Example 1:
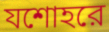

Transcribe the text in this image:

যশোহরে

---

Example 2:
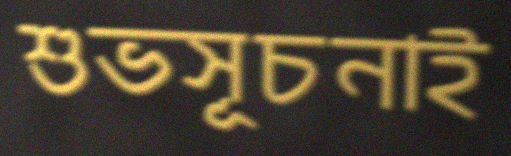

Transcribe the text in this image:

শুভসূচনাই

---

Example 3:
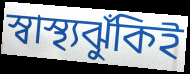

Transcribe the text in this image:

স্বাস্থ্যঝুঁকিই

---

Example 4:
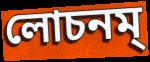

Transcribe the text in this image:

লোচনম্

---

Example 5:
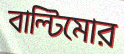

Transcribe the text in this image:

বাল্টিমোর